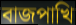
বাজপাখি